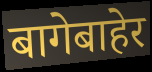
बागेबाहेर